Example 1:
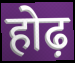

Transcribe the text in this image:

होढ़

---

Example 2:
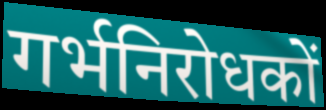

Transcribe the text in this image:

गर्भनिरोधकों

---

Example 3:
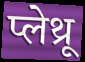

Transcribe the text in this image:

प्लेथ्रू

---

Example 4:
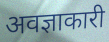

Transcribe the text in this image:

अवज्ञाकारी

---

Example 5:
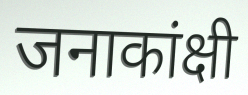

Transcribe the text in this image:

जनाकांक्षी